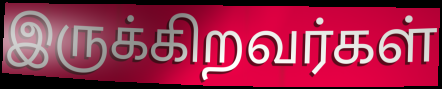
இருக்கிறவர்கள்